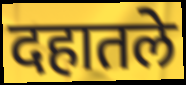
दहातले